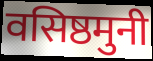
वसिष्ठमुनी